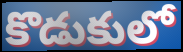
కొడుకులో